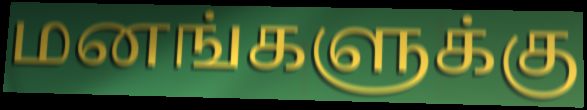
மனங்களுக்கு